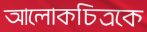
আলোকচিত্রকে